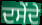
ਦਸੇਂਦੇ